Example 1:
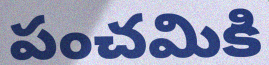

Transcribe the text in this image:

పంచమికి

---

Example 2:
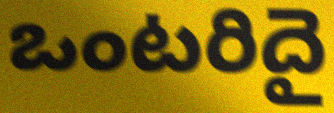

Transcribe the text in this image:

ఒంటరిదై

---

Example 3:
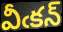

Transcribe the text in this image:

వీఁకన్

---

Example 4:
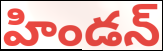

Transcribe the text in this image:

హిండన్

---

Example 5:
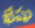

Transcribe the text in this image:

ఖేషు